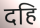
दहि